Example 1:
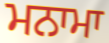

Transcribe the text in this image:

ਮਨਾਮਾ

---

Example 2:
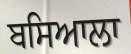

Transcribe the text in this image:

ਬਸਿਆਲਾ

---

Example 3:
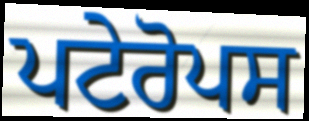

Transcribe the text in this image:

ਪਟੇਰੋਪਸ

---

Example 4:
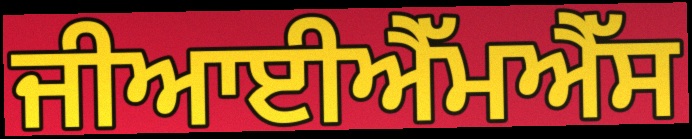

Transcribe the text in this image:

ਜੀਆਈਐੱਮਐੱਸ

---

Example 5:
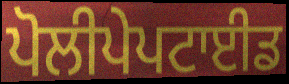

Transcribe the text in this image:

ਪੋਲੀਪੇਪਟਾਈਡ